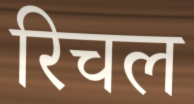
रिचल